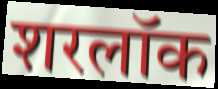
शरलॉक